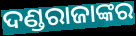
ଦଣ୍ଡରାଜାଙ୍କର